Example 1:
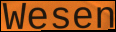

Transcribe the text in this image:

Wesen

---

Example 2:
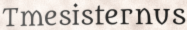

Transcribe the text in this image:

Tmesisternus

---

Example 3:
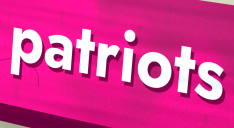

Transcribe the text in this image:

patriots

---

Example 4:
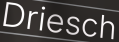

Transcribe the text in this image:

Driesch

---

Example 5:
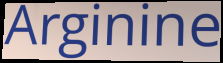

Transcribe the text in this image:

Arginine